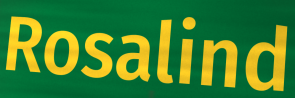
Rosalind